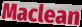
Maclean